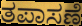
ತಪಾಸಣೆ